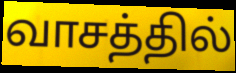
வாசத்தில்